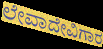
ಲೇವಾದೇವಿಗಾರ